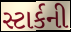
સ્ટાર્કની